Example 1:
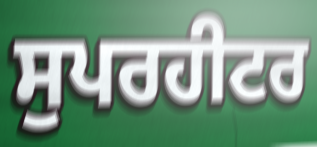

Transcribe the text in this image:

ਸੁਪਰਹੀਟਰ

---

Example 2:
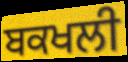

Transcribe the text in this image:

ਬਕਖਲੀ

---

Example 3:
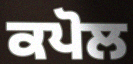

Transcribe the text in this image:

ਕਪੋਲ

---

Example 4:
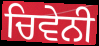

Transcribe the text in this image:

ਚਿਵੇਨੀ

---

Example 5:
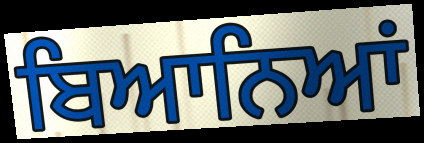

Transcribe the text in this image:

ਬਿਆਨਿਆਂ